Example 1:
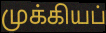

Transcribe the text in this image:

முக்கியப்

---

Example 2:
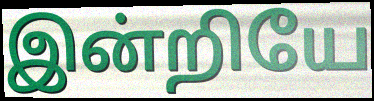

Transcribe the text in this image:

இன்றியே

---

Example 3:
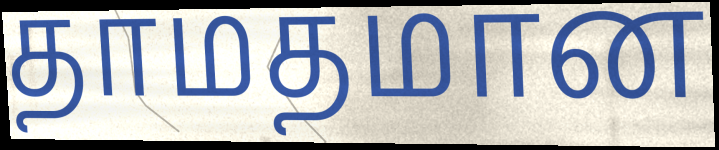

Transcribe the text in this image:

தாமதமான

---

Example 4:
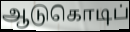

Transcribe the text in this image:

ஆடுகொடிப்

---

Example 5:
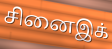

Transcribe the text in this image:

சினைஇக்